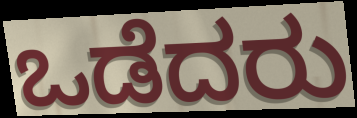
ಒಡೆದರು